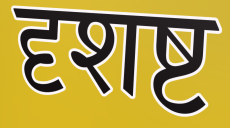
दृशष्ट